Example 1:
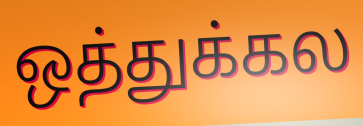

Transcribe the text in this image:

ஒத்துக்கல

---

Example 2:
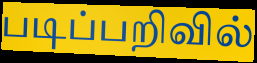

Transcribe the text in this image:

படிப்பறிவில்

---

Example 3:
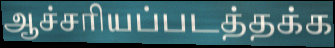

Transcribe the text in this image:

ஆச்சரியப்படத்தக்க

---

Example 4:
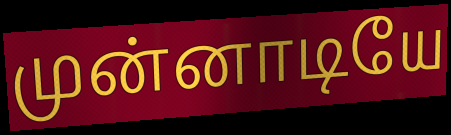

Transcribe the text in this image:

முன்னாடியே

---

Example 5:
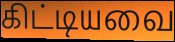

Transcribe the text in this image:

கிட்டியவை